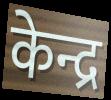
केन्‍द्र